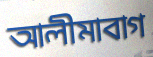
আলীমাবাগ